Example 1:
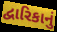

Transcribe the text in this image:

દ્વારિકાનું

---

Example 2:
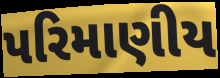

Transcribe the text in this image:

પરિમાણીય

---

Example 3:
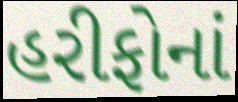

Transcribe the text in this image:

હરીફોનાં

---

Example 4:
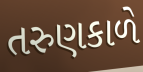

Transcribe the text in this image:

તરુણકાળે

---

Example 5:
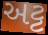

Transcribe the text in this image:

અટ્ટ